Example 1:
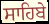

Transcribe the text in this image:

ਸਾਹਿਬੇ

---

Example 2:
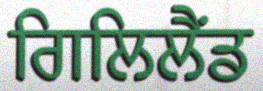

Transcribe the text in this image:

ਗਿਲਿਲੈਂਡ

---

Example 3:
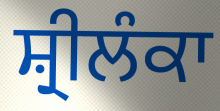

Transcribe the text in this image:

ਸ਼੍ਰੀਲੰਕਾ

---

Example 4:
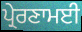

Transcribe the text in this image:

ਪ੍ਰੇਰਣਾਮਈ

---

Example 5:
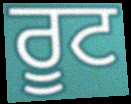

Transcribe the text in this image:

ਰੂਟ